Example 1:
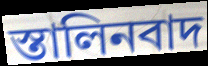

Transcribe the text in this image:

স্তালিনবাদ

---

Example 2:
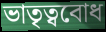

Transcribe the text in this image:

ভাতৃত্ববোধ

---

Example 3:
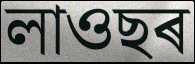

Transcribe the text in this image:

লাওছৰ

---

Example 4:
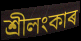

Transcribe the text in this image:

শ্ৰীলংকাৰ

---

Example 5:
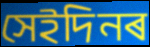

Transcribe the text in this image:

সেইদিনৰ